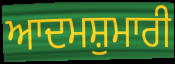
ਆਦਮਸ਼ੁਮਾਰੀ